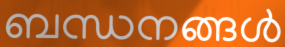
ബന്ധനങ്ങൾ